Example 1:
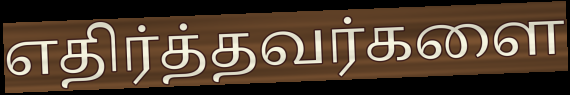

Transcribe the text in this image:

எதிர்த்தவர்களை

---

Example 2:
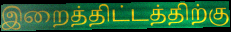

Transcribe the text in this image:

இறைத்திட்டத்திற்கு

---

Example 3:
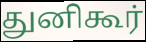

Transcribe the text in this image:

துனிகூர்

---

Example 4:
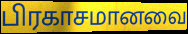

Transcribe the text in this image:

பிரகாசமானவை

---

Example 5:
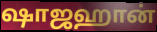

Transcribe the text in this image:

ஷாஜஹான்